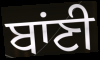
ਬਾਂਣੀ